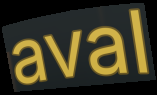
aval